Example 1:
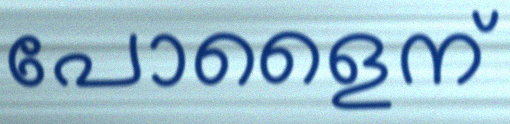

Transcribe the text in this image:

പോളൈന്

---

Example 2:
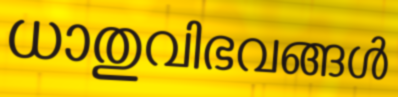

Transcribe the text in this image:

ധാതുവിഭവങ്ങൾ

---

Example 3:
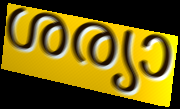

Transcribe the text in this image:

ശര്യാ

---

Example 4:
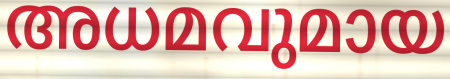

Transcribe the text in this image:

അധമവുമായ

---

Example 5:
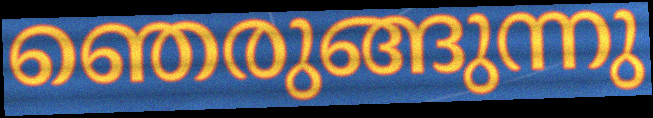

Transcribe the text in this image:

ഞെരുങ്ങുന്നു